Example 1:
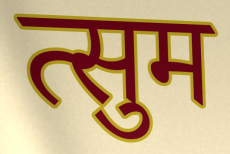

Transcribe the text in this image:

त्सुम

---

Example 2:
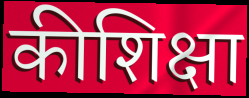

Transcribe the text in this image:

कीशिक्षा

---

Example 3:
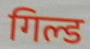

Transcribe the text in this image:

गिल्ड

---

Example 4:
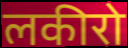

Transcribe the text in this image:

लकीरो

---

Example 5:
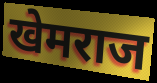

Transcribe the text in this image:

खेमराज